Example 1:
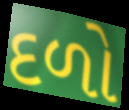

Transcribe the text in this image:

દળો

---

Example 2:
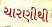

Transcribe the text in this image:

ચારણીથી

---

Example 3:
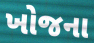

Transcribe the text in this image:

ખોજના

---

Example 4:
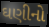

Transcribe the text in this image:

ઘણીનો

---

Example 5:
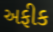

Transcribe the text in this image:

અફીક